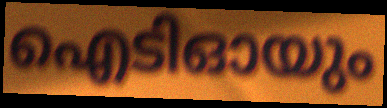
ഐടിഓയും